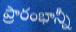
ప్రారంభాన్నీ